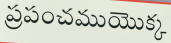
ప్రపంచముయొక్క